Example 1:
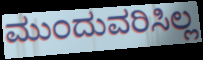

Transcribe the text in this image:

ಮುಂದುವರಿಸಿಲ್ಲ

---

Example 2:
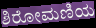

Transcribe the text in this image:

ಶಿರೋಮಣಿಯ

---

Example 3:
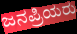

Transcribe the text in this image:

ಜನಪ್ರಿಯರು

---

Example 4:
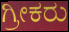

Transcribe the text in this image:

ಗ್ರೀಕರು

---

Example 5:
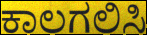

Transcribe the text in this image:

ಕಾಲಗಲಿಸಿ